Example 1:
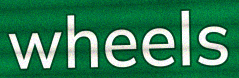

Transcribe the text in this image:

wheels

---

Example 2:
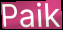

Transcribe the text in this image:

Paik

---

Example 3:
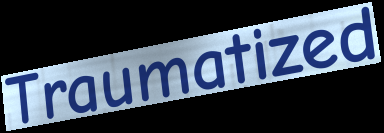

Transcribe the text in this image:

Traumatized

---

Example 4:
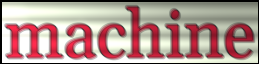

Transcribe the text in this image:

machine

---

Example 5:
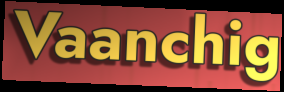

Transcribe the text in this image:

Vaanchig